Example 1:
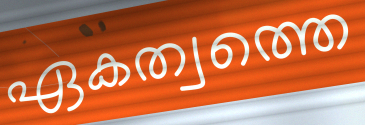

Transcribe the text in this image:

ഏകത്വത്തെ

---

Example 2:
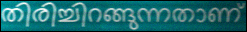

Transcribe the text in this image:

തിരിച്ചിറങ്ങുന്നതാണ്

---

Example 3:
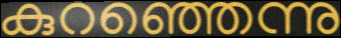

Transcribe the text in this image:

കുറഞ്ഞെന്നു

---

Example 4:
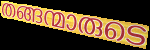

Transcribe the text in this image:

തങ്ങന്മാരുടെ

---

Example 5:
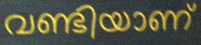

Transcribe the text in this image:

വണ്ടിയാണ്